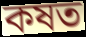
কষত